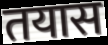
तयास